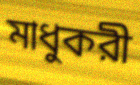
মাধুকরী